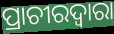
ପ୍ରାଚୀରଦ୍ୱାରା